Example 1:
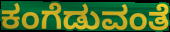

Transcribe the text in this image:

ಕಂಗೆಡುವಂತೆ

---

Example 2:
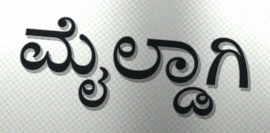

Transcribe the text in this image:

ಮೈಲ್ಡಾಗಿ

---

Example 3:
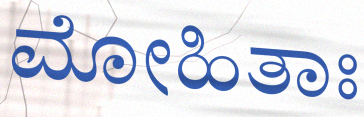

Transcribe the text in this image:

ಮೋಹಿತಾಃ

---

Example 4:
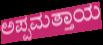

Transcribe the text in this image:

ಅಪ್ಪಮತ್ತಾಯ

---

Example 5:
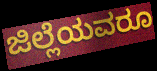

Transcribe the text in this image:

ಜಿಲ್ಲೆಯವರೂ